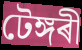
টেঙ্গৰী